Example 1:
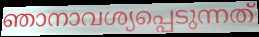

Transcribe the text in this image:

ഞാനാവശ്യപ്പെടുന്നത്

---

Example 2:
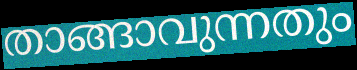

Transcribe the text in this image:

താങ്ങാവുന്നതും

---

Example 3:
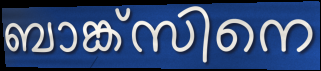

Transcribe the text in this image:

ബാങ്ക്സിനെ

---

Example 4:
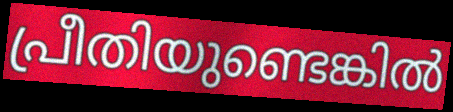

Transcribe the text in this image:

പ്രീതിയുണ്ടെങ്കിൽ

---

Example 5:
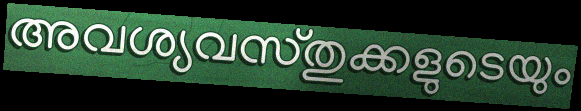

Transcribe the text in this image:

അവശ്യവസ്തുക്കളുടെയും